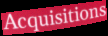
Acquisitions